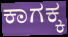
ಕಾಗಕ್ಕ